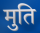
मुति